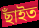
ছাঁইত